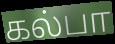
கல்பா